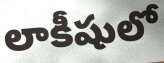
లాకీషులో